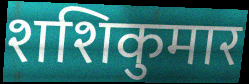
शशिकुमार